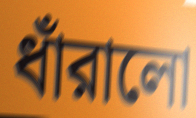
ধাঁরালো